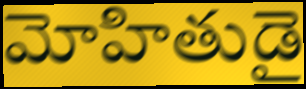
మోహితుడై